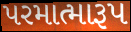
પરમાત્મારૂપ